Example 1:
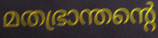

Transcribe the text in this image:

മതഭ്രാന്തന്റെ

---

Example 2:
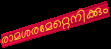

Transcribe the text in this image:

രാമശരമേറ്റെനിക്കും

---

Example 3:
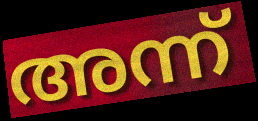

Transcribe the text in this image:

അന്ന്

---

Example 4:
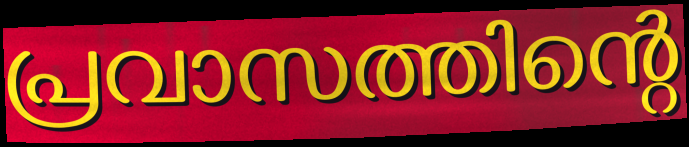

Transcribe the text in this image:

പ്രവാസത്തിന്റെ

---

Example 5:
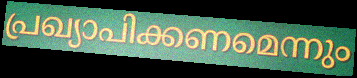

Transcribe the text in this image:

പ്രഖ്യാപിക്കണമെന്നും